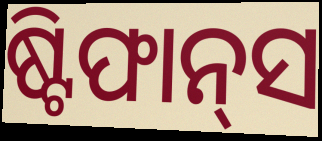
ଷ୍ଟିଫାନ୍‍ସ